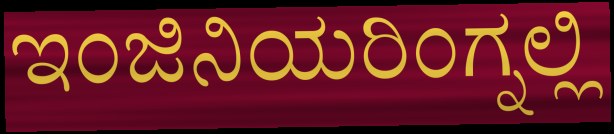
ಇಂಜಿನಿಯರಿಂಗ್ನಲ್ಲಿ